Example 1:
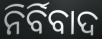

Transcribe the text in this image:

ନିର୍ବିବାଦ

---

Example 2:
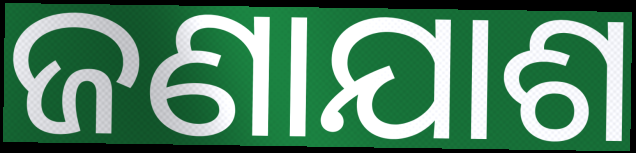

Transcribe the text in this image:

ଜଣାଯାଶ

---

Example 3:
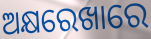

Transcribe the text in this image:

ଅକ୍ଷରେଖାରେ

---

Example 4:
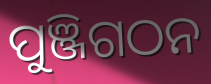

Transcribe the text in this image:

ପୁଞ୍ଜିଗଠନ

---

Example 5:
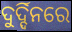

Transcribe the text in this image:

ଦୁର୍ଦ୍ଦିନରେ